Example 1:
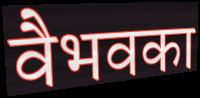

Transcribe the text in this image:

वैभवका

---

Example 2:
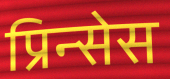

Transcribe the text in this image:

प्रिन्सेस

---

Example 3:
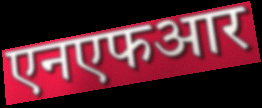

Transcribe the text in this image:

एनएफआर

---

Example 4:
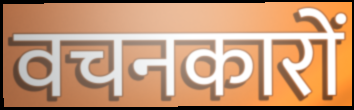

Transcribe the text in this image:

वचनकारों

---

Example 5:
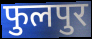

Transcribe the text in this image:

फुलपुर